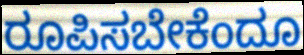
ರೂಪಿಸಬೇಕೆಂದೂ